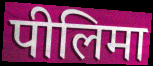
पीलिमा